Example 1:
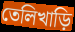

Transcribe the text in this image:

তেলিখাড়ি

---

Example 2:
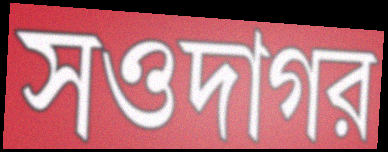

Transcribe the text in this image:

সওদাগর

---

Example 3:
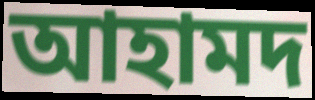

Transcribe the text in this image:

আহামদ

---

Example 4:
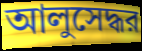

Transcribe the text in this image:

আলুসেদ্ধর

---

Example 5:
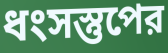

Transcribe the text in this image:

ধংসস্তুপের